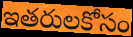
ఇతరులకోసం